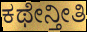
ಕಥೇನ್ತೀತಿ